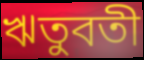
ঋতুবতী